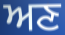
ਅਣ